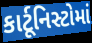
કાર્ટૂનિસ્ટોમાં